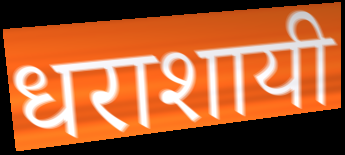
धराशायी